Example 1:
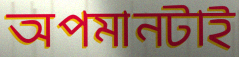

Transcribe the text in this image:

অপমানটাই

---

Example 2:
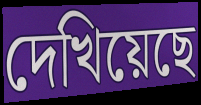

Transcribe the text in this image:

দেখিয়েছে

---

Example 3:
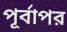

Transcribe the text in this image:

পূর্বাপর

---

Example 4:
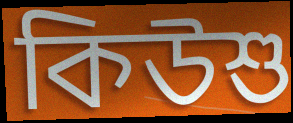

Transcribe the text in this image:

কিউশু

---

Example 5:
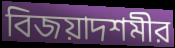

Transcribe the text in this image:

বিজয়াদশমীর